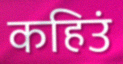
कहिउं